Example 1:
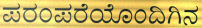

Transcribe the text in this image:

ಪರಂಪರೆಯೊಂದಿಗಿನ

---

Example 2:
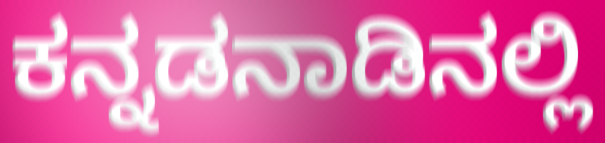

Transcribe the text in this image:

ಕನ್ನಡನಾಡಿನಲ್ಲಿ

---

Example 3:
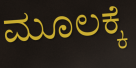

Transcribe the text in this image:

ಮೂಲಕ್ಕೆ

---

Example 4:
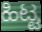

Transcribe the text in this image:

ಹಿಟ್ಟ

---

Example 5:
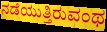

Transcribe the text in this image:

ನಡೆಯುತ್ತಿರುವಂಥ